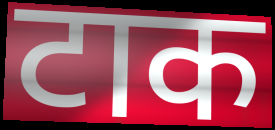
टाक